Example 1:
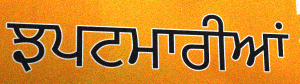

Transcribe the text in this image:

ਝਪਟਮਾਰੀਆਂ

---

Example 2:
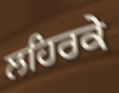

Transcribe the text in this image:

ਲਹਿਰਕੇ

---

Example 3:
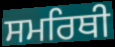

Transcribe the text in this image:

ਸਮਰਿਥੀ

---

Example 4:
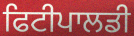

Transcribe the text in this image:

ਫਿਟੀਪਾਲਡੀ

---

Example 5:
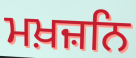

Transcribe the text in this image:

ਮਖ਼ਜ਼ਨਿ